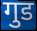
गुड